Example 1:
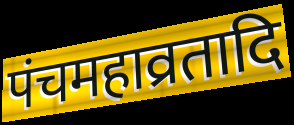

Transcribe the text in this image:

पंचमहाव्रतादि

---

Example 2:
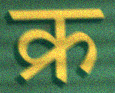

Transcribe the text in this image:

क्र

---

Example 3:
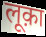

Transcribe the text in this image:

लूक़ा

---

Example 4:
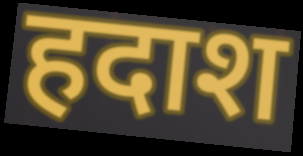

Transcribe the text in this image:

हदाश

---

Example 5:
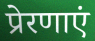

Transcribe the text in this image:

प्रेरणाएं